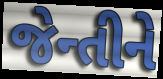
જેન્તીને